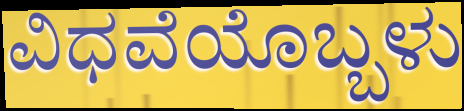
ವಿಧವೆಯೊಬ್ಬಳು